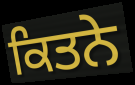
ਕਿਤਨੇ